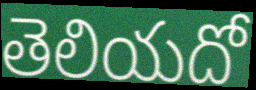
తెలియదో